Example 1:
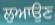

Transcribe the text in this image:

ਲੁਆਉਣ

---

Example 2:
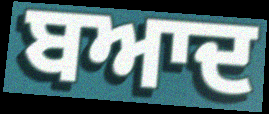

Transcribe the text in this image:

ਬਆਦ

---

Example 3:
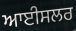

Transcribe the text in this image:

ਆਈਸਲਰ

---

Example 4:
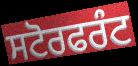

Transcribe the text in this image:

ਸਟੋਰਫਰੰਟ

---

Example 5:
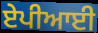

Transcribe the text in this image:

ਏਪੀਆਈ